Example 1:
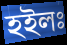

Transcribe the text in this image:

হইলঃ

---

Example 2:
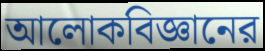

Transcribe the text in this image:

আলোকবিজ্ঞানের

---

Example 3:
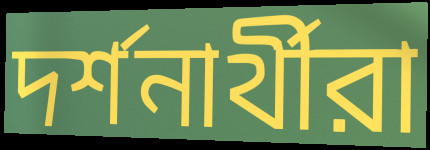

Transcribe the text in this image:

দর্শনার্থীরা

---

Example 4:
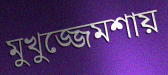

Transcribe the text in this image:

মুখুজ্জেমশায়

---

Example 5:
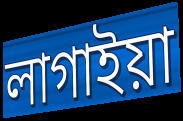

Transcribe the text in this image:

লাগাইয়া